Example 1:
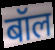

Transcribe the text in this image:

बॉल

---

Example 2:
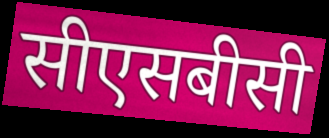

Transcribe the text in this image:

सीएसबीसी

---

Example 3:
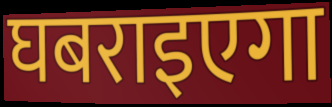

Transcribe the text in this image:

घबराइएगा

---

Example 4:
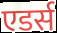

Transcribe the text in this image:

एडर्स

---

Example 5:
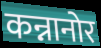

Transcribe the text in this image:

कन्नानोर